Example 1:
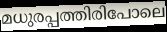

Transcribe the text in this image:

മധുരപ്പത്തിരിപോലെ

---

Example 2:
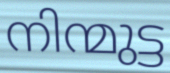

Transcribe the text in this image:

നിന്മുട്ട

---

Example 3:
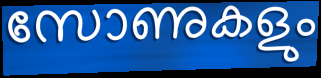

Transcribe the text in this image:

സോണുകളും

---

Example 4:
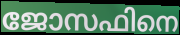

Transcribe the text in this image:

ജോസഫിനെ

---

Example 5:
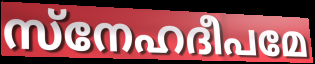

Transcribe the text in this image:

സ്നേഹദീപമേ